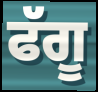
ਫੱਗੂ